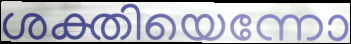
ശക്തിയെന്നോ